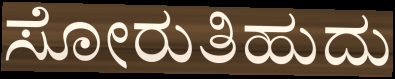
ಸೋರುತಿಹುದು